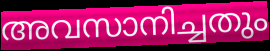
അവസാനിച്ചതും